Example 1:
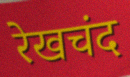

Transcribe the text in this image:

रेखचंद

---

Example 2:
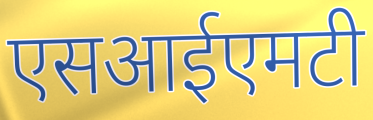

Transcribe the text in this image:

एसआईएमटी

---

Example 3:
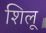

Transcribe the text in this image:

शिलू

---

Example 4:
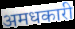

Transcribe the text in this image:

अमधकारी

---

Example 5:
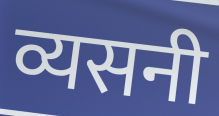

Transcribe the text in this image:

व्यसनी